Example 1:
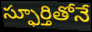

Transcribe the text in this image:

స్ఫూర్తితోనే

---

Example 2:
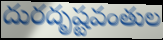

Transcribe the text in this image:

దురదృష్టవంతుల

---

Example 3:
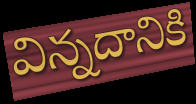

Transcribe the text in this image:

విన్నదానికి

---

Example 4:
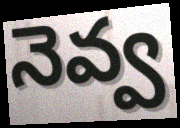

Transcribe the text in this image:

నెవ్వ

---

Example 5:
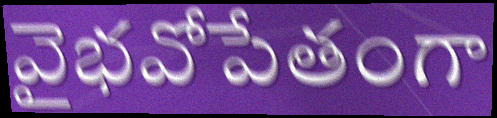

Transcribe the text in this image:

వైభవోపేతంగా